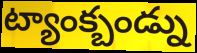
ట్యాంక్బండ్ను